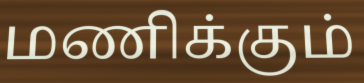
மணிக்கும்